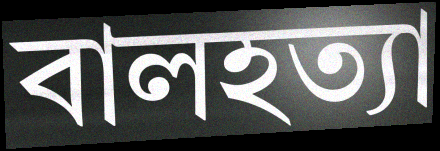
বালহত্যা